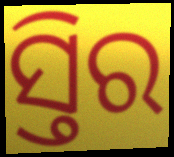
ସ୍ତିର